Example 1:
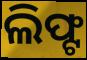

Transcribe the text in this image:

ଲିଫ୍ଟ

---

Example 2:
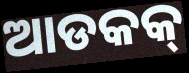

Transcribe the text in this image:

ଆଡକକ୍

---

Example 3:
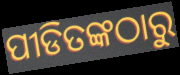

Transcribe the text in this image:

ପୀଡିତଙ୍କଠାରୁ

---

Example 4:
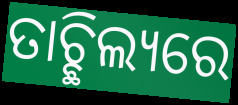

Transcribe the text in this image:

ତାଚ୍ଛିଲ୍ୟରେ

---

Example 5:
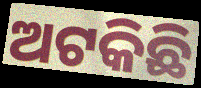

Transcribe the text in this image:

ଅଟକିଛି